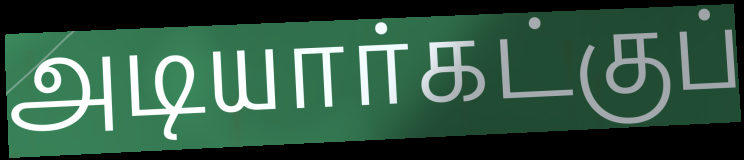
அடியார்கட்குப்